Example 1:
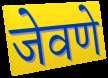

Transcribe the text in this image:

जेवणे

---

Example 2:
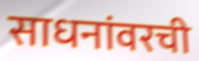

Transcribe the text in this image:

साधनांवरची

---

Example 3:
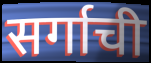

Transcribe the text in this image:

सर्गाची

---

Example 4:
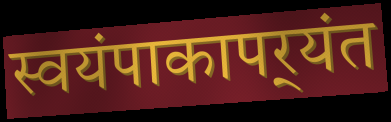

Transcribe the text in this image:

स्वयंपाकापर्यंत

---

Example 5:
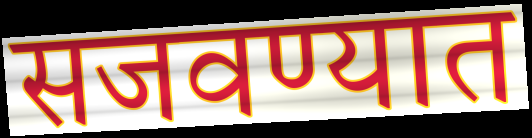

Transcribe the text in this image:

सजवण्यात